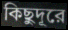
কিছুদূরে